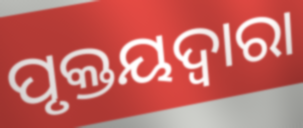
ପୃକ୍ତୟଦ୍ଵାରା